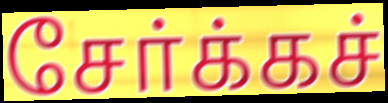
சேர்க்கச்